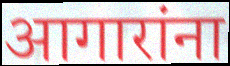
आगारांना